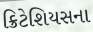
ક્રિટેશિયસના